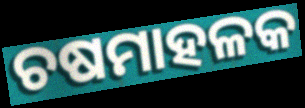
ଚଷମାହଳକ